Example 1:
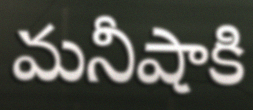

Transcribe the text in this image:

మనీషాకి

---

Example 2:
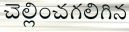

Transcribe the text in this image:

చెల్లించగలిగిన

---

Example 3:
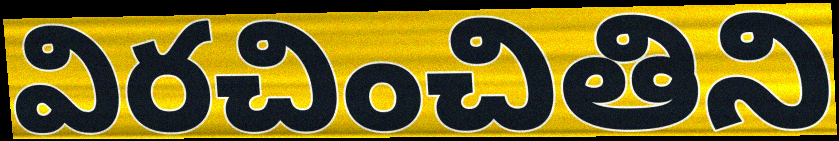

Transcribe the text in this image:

విరచించితిని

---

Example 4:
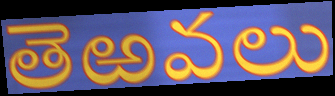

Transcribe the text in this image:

తెఱవలు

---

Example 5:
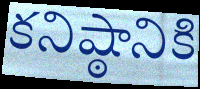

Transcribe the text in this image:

కనిష్ఠానికి